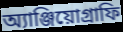
অ্যাঞ্জিয়োগ্রাফি